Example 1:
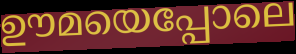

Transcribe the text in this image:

ഊമയെപ്പോലെ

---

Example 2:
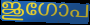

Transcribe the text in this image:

ജുഗോപ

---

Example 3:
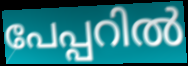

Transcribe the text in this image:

പേപ്പറിൽ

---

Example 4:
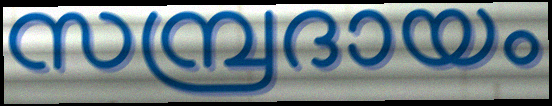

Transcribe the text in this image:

സമ്പ്രദായം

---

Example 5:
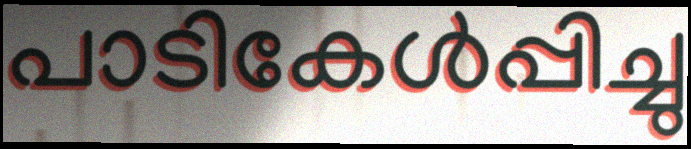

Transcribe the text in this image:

പാടികേൾപ്പിച്ചു